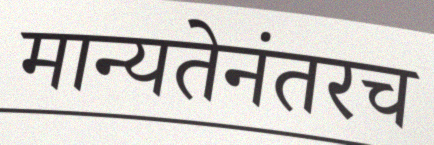
मान्यतेनंतरच